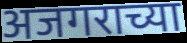
अजगराच्या